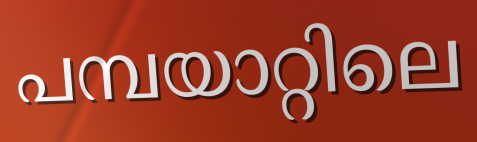
പമ്പയാറ്റിലെ